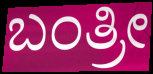
ಬಂತ್ರೀ